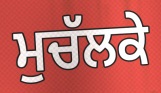
ਮੁਚੱਲਕੇ